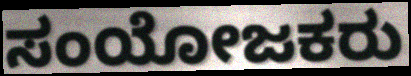
ಸಂಯೋಜಕರು